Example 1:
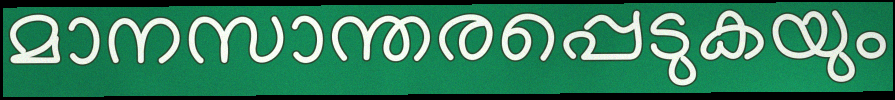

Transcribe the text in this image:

മാനസാന്തരപ്പെടുകയും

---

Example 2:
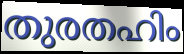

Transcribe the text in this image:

തുരതഹിം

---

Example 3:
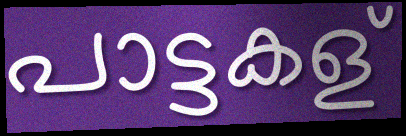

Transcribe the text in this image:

പാട്ടകള്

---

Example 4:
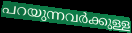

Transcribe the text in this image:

പറയുന്നവർക്കുള്ള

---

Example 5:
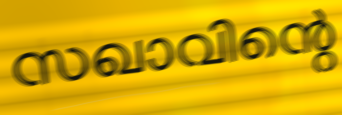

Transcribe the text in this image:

സഖാവിന്റെ